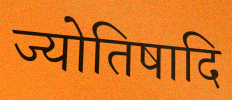
ज्योतिषादि